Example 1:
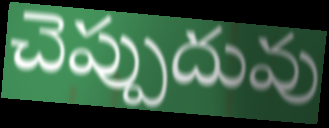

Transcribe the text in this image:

చెప్పుదువు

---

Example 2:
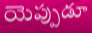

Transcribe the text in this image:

యెప్పుడూ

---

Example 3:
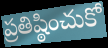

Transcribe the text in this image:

ప్రతిష్ఠించుకో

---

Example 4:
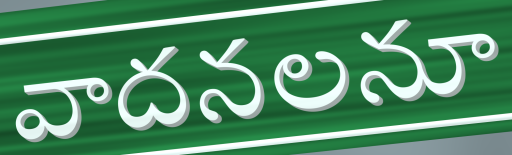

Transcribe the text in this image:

వాదనలనూ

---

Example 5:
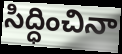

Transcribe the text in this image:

సిద్ధించినా